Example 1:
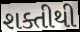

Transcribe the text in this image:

શક્તીથી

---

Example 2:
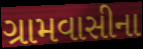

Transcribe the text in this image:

ગ્રામવાસીના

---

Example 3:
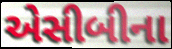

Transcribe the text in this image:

એસીબીના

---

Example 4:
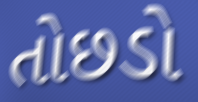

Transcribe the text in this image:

તોછડો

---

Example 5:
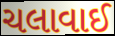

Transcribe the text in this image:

ચલાવાઈ